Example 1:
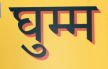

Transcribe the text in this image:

घुम्म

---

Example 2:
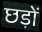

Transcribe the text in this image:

छड़ों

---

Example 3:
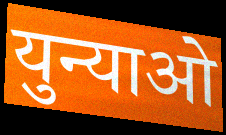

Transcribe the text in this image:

युन्याओ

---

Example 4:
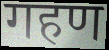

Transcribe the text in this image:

गहण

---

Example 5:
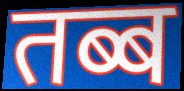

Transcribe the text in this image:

तब्ब